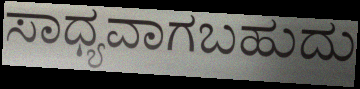
ಸಾಧ್ಯವಾಗಬಹುದು